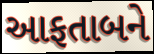
આફતાબને